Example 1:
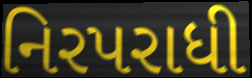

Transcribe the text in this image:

નિરપરાધી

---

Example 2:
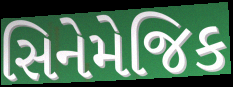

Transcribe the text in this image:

સિનેમેજિક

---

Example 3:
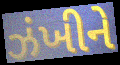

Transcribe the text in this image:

ઝંખીને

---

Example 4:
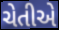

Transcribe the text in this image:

ચેતીએ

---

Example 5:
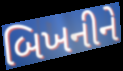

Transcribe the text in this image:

બિખનીને